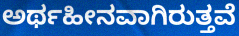
ಅರ್ಥಹೀನವಾಗಿರುತ್ತವೆ